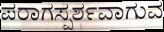
ಪರಾಗಸ್ಪರ್ಶವಾಗುವ